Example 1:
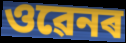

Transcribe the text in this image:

ওৱেনৰ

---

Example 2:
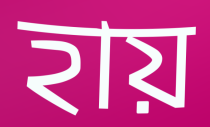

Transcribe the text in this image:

হায়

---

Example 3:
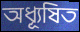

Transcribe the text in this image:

অধ্যূষিত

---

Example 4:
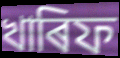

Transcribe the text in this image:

খাৰিফ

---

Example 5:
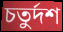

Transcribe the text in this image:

চতুৰ্দশ